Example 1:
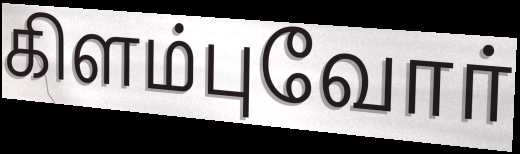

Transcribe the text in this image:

கிளம்புவோர்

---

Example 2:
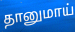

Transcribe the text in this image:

தானுமாய்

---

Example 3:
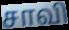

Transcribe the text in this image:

சாவி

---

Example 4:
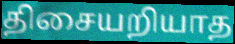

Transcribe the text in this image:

திசையறியாத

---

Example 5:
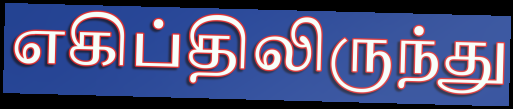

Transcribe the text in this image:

எகிப்திலிருந்து